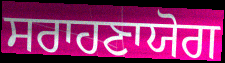
ਸਰਾਹਣਾਯੋਗ